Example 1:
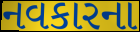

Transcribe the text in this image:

નવકારના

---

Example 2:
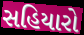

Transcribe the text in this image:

સહિયારો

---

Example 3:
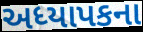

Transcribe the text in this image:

અધ્યાપકના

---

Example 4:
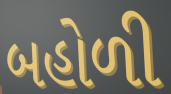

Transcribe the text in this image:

બહોળી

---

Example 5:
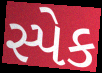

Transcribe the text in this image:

સ્પેક